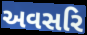
અવસરિ